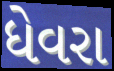
ધેવરા